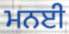
ਮਨਈ